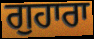
ਗੁਹਾਰਾ